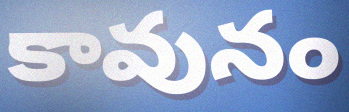
కావునం